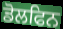
ਡੋਲਫਿਨ